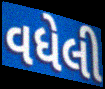
વધેલી